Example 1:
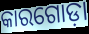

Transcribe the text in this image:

କାରଗୋଡ଼ା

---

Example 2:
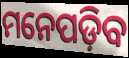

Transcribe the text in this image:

ମନେପଡ଼ିବ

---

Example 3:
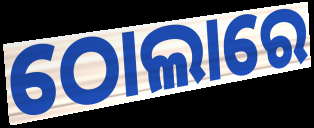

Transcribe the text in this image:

ଠୋଲାରେ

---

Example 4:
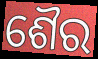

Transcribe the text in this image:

ଶୈର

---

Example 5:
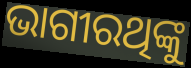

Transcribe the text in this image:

ଭାଗୀରଥିଙ୍କୁ